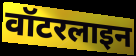
वॉटरलाइन